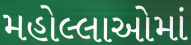
મહોલ્લાઓમાં